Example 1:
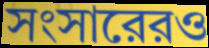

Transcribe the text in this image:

সংসারেরও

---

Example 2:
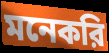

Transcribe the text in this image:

মনেকরি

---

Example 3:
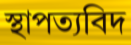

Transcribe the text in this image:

স্থাপত্যবিদ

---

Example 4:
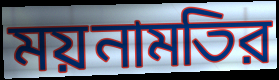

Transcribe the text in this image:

ময়নামতির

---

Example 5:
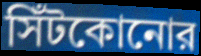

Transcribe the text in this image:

সিঁটকোনোর